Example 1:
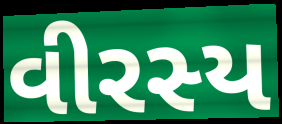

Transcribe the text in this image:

વીરસ્ય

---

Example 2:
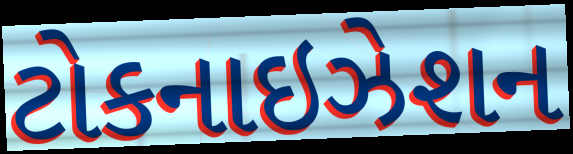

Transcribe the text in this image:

ટોકનાઇઝેશન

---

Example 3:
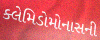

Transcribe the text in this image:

ક્લેમિડોમોનાસની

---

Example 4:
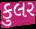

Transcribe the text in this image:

કુલર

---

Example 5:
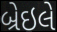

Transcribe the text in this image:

બ્રેઇલે